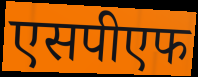
एसपीएफ